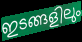
ഇടങ്ങളിലും